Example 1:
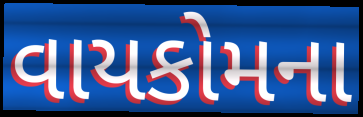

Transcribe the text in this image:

વાયકોમના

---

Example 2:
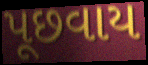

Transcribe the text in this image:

પૂછવાય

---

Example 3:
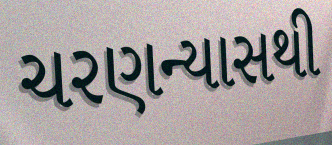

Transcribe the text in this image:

ચરણન્યાસથી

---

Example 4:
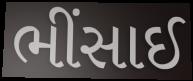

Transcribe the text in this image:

ભીંસાઈ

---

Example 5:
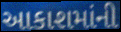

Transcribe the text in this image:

આકાશમાંની